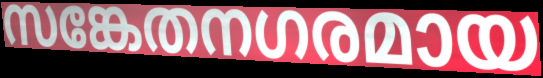
സങ്കേതനഗരമായ